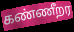
கண்ணீறர